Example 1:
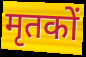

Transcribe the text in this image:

मृतकों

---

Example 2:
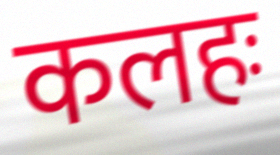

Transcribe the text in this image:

कलहः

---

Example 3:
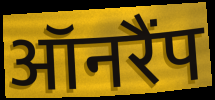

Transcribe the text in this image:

ऑनरैंप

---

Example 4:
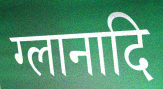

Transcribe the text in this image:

ग्लानादि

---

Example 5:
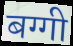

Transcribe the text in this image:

बग्गी